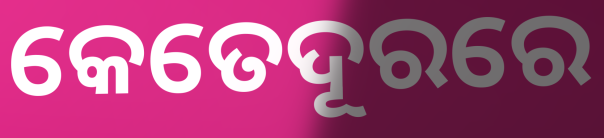
କେତେଦୂରରେ